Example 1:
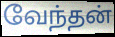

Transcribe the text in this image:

வேந்தன்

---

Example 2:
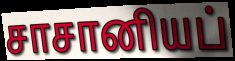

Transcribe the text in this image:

சாசானியப்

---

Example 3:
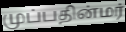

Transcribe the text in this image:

முப்பதின்மர்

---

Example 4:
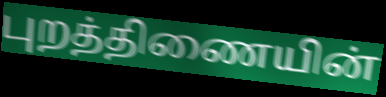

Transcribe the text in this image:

புறத்திணையின்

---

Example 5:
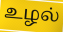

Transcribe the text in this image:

உழல்